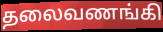
தலைவணங்கி